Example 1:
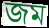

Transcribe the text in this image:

জম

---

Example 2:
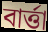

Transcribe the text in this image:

বার্ত্তা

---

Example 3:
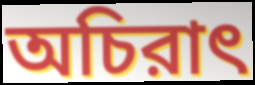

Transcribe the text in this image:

অচিরাৎ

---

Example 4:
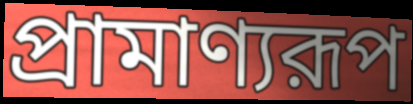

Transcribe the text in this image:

প্রামাণ্যরূপ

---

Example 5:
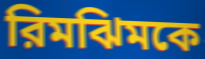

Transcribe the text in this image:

রিমঝিমকে